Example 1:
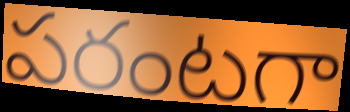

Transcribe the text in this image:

పరంటగా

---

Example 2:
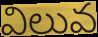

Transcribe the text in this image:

విలువ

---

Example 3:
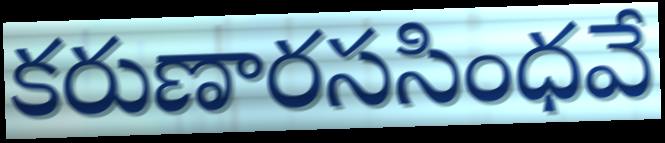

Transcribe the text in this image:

కరుణారససింధవే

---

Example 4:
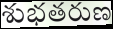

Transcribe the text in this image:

శుభతరుణ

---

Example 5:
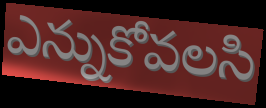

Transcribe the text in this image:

ఎన్నుకోవలసి